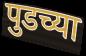
पुडच्या